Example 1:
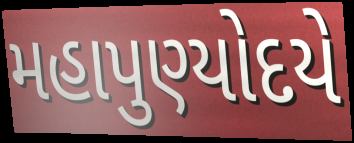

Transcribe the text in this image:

મહાપુણ્યોદયે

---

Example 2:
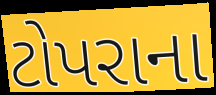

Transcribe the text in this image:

ટોપરાના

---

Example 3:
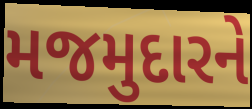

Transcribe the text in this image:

મજમુદારને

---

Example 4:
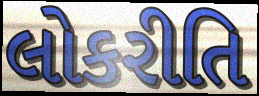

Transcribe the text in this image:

લોકરીતિ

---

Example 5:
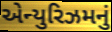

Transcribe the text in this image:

એન્યુરિઝમનું